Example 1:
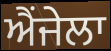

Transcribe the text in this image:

ਐਂਜੇਲਾ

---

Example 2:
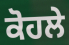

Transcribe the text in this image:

ਕੋਹਲੇ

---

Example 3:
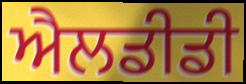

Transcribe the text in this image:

ਐਲਡੀਡੀ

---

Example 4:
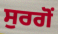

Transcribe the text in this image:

ਸੁਰਗੋਂ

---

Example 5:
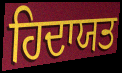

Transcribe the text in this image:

ਹਿਦਾਯਤ